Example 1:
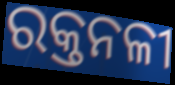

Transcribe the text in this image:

ରକ୍ତନଳୀ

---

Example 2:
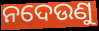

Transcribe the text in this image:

ନଦେଉଣୁ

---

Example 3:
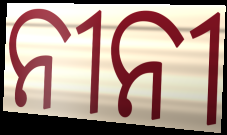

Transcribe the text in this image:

ନୀନୀ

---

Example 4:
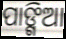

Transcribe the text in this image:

ପାଙ୍ଗିଆ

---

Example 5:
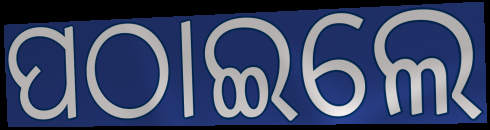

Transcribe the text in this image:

ପଠାଇଲେ